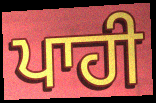
ਪਾਹੀ